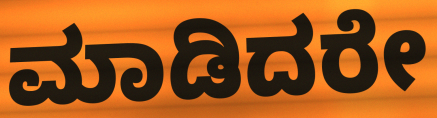
ಮಾಡಿದರೇ